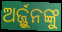
ଅର୍ଜ୍ଜୁନଙ୍କୁ